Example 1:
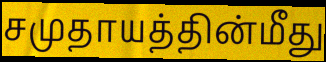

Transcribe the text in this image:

சமுதாயத்தின்மீது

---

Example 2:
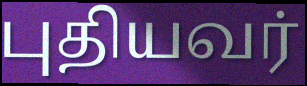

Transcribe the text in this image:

புதியவர்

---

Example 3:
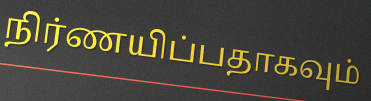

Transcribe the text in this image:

நிர்ணயிப்பதாகவும்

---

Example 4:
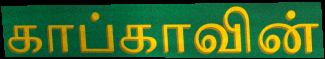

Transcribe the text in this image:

காப்காவின்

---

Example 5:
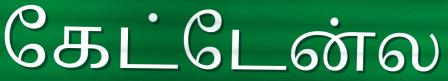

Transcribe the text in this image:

கேட்டேன்ல